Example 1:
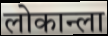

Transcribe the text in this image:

लोकान्ला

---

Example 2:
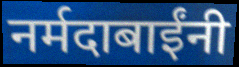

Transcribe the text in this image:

नर्मदाबाईंनी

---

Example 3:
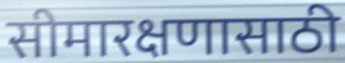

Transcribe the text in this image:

सीमारक्षणासाठी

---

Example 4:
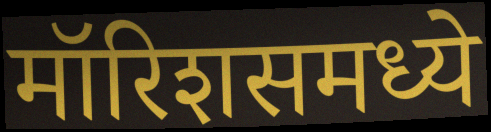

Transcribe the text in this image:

मॉरिशसमध्ये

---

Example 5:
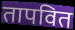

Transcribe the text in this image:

तापवित